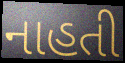
નાહતી